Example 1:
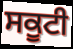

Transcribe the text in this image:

ਸਕੂਟੀ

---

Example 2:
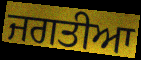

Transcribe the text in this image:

ਜਗਤੀਆ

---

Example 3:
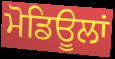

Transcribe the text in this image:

ਮੋਡਿਊਲਾਂ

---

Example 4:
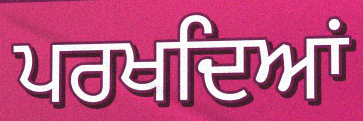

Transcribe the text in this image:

ਪਰਖਦਿਆਂ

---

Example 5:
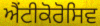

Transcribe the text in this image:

ਐਂਟੀਕੋਰੋਸਿਵ